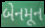
બેનમૂન